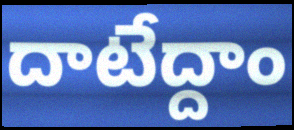
దాటేద్దాం